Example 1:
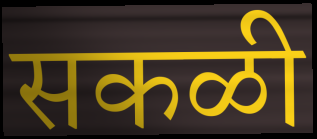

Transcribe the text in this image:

सकळी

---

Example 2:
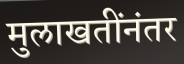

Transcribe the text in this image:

मुलाखतींनंतर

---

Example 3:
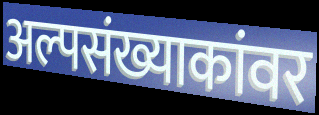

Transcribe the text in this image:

अल्पसंख्याकांवर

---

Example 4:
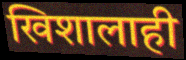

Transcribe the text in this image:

खिशालाही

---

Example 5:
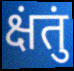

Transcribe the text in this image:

क्षंतुं